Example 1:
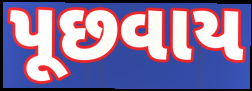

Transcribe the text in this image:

પૂછવાય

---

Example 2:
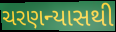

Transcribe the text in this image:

ચરણન્યાસથી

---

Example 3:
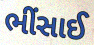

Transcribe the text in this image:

ભીંસાઈ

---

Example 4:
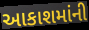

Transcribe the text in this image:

આકાશમાંની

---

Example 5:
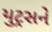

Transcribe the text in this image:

યુટ્રસને